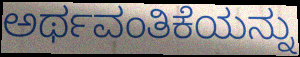
ಅರ್ಥವಂತಿಕೆಯನ್ನು